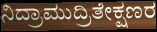
ನಿದ್ರಾಮುದ್ರಿತೇಕ್ಷಣರ